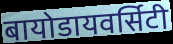
बायोडायवर्सिटी